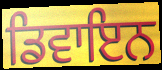
ਡਿਵਾਇਨ